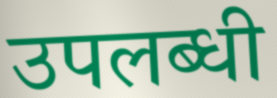
उपलब्धी